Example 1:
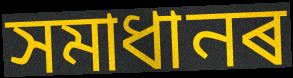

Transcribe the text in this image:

সমাধানৰ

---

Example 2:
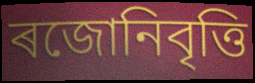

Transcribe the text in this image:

ৰজোনিবৃত্তি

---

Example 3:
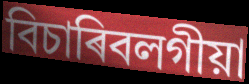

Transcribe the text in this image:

বিচাৰিবলগীয়া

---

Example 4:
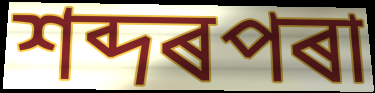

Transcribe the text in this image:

শব্দৰপৰা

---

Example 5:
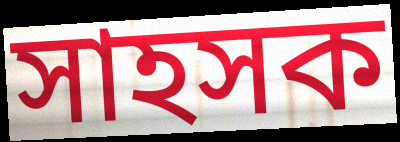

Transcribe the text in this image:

সাহসক